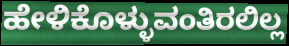
ಹೇಳಿಕೊಳ್ಳುವಂತಿರಲಿಲ್ಲ